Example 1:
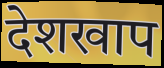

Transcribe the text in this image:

देशखाप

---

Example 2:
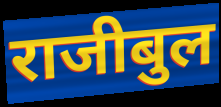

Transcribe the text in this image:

राजीबुल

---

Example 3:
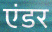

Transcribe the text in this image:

एंडर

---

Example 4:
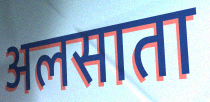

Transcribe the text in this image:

अलसाता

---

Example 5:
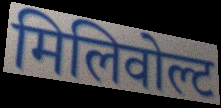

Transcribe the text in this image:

मिलिवोल्ट